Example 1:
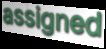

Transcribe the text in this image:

assigned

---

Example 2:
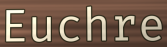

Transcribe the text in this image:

Euchre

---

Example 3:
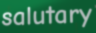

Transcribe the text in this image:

salutary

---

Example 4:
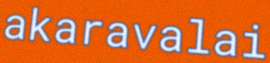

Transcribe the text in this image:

akaravalai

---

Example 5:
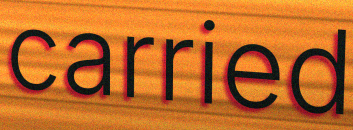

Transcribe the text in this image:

carried